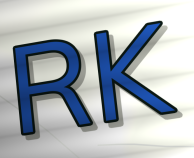
RK